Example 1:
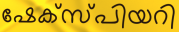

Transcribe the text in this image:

ഷേക്സ്പിയറി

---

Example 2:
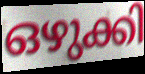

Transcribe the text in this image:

ഒഴുക്കി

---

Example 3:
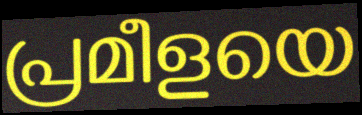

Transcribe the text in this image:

പ്രമീളയെ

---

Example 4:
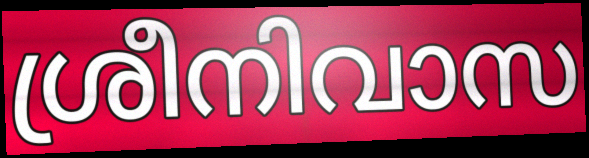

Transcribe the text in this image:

ശ്രീനിവാസ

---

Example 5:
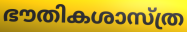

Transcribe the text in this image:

ഭൗതികശാസ്ത്ര